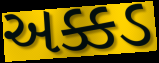
અક્કડ